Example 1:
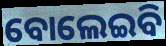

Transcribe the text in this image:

ବୋଲେଇବି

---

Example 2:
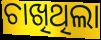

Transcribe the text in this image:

ଚାଖିଥିଲା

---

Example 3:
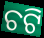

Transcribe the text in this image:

ଚଟି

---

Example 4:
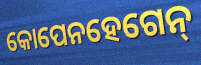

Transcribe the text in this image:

କୋପେନହେଗେନ୍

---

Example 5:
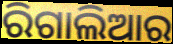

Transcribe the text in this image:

ରିଗାଲିଆର